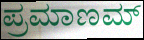
ಪ್ರಮಾಣಮ್